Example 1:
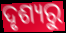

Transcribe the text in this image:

ଦୃଶ୍ୟରୁ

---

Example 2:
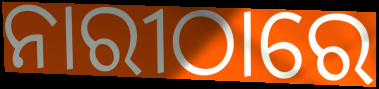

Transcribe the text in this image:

ନାରୀଠାରେ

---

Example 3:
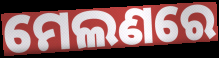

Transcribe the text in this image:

ମେଲଣରେ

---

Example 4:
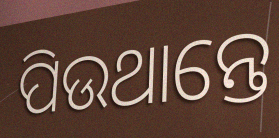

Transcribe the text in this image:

ପିଉଥାନ୍ତେ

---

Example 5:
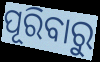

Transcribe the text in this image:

ପୂରିବାରୁ